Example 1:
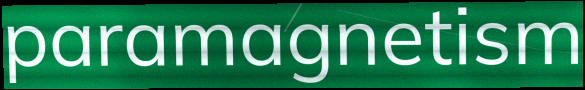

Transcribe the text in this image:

paramagnetism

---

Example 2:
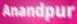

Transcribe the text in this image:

Anandpur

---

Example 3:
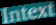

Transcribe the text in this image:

Intext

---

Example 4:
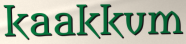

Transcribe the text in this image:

kaakkum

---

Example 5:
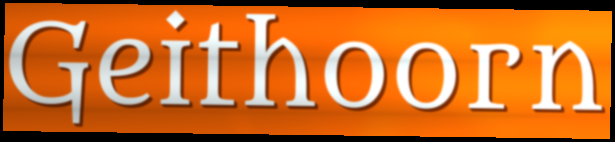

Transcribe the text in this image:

Geithoorn